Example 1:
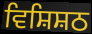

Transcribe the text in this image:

ਵਿਸ਼ਿਸ਼ਠ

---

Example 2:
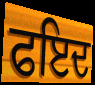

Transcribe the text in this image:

ਫਇਦ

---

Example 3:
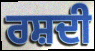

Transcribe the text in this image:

ਰਸ਼ਦੀ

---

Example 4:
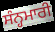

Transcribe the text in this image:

ਸੰਨ੍ਹਮਾਰੀ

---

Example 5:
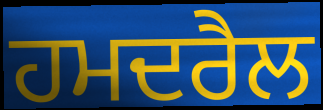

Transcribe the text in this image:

ਹਮਦਰੈਲ